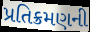
પ્રતિક્રમણની